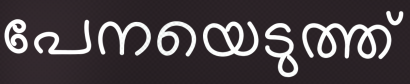
പേനയെടുത്ത്